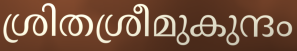
ശ്രിതശ്രീമുകുന്ദം